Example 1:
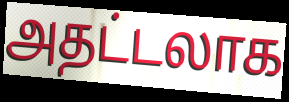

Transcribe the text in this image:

அதட்டலாக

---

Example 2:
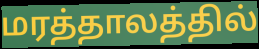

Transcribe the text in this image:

மரத்தாலத்தில்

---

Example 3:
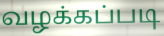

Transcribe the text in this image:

வழக்கப்படி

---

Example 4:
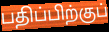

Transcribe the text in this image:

பதிப்பிற்குப்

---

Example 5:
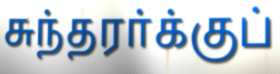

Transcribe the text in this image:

சுந்தரர்க்குப்